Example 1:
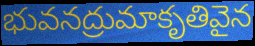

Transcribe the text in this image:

భువనద్రుమాకృతివైన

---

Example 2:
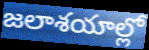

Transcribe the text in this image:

జలాశయాల్లో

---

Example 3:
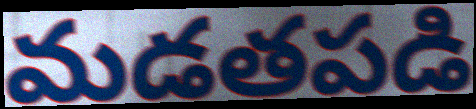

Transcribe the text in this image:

మడతపడి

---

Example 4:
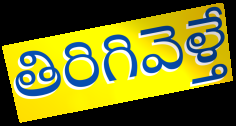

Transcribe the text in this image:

తిరిగివెళ్తే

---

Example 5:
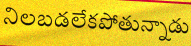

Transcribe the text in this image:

నిలబడలేకపోతున్నాడు